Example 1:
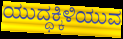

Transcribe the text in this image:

ಯುದ್ಧಕ್ಕಿಳಿಯುವ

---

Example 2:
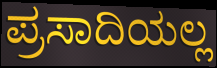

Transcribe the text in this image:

ಪ್ರಸಾದಿಯಲ್ಲ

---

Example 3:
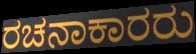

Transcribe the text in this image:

ರಚನಾಕಾರರು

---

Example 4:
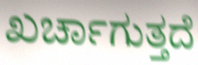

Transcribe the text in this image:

ಖರ್ಚಾಗುತ್ತದೆ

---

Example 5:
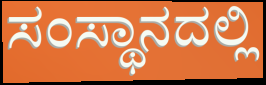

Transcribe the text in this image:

ಸಂಸ್ಥಾನದಲ್ಲಿ